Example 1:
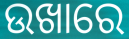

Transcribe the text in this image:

ଉଖାରେ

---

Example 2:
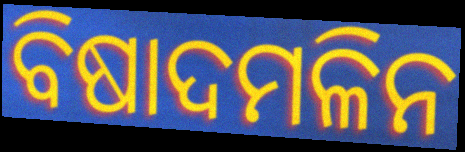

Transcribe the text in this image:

ବିଷାଦମଳିନ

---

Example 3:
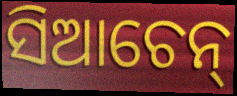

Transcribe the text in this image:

ସିଆଚେନ୍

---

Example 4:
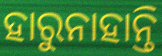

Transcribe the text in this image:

ହାରୁନାହାନ୍ତି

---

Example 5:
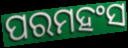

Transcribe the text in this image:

ପରମହଂସ